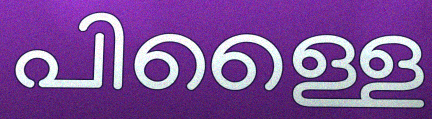
പിള്ളൈ